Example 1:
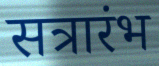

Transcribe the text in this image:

सत्रारंभ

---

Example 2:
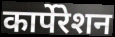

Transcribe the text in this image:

कार्पेरेशन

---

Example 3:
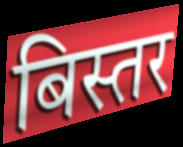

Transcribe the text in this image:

बिस्‍तर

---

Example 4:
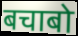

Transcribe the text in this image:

बचाबो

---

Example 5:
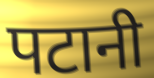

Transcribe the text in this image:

पटानी